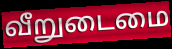
வீறுடைமை